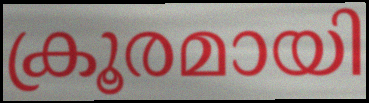
ക്രൂരമായി